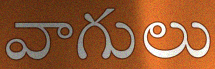
వాగులు